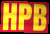
HPB